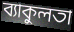
ব্যাকুলতা